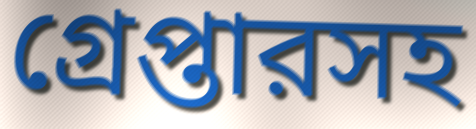
গ্রেপ্তারসহ